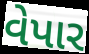
વેપાર